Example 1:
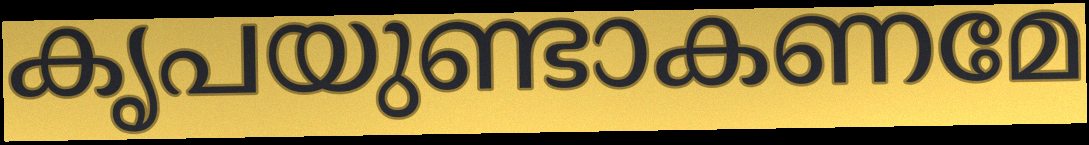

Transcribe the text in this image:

കൃപയുണ്ടാകണമേ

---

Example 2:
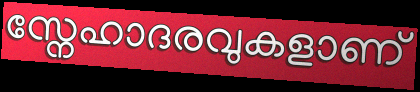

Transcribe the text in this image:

സ്നേഹാദരവുകളാണ്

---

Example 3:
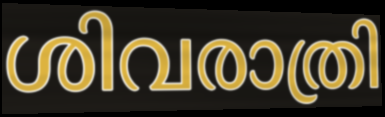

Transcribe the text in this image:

ശിവരാത്രി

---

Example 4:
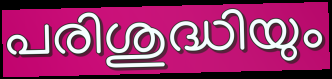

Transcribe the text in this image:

പരിശുദ്ധിയും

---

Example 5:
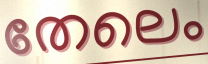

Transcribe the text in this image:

തേലെം